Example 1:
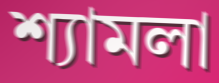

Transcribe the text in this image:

শ্যামলা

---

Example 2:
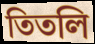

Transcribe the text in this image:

তিতলি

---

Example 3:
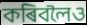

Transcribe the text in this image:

কৰিবলৈও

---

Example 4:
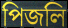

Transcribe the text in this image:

পিজলি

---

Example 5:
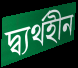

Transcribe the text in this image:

দ্ব্যৰ্থহীন